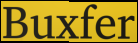
Buxfer